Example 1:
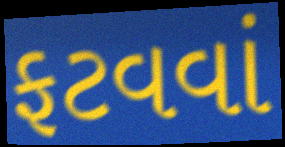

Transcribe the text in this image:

ફટવવાં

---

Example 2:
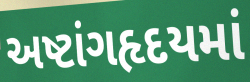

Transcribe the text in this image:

અષ્ટાંગહૃદયમાં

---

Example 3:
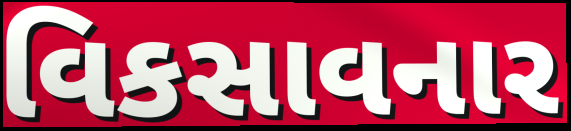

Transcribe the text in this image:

વિકસાવનાર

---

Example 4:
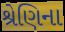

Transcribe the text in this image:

શ્રેણિના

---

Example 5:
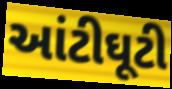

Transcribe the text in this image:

આંટીઘૂટી